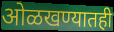
ओळखण्यातही